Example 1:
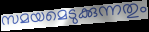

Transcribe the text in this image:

സമയമെടുക്കുന്നതും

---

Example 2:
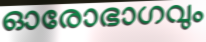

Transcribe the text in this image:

ഓരോഭാഗവും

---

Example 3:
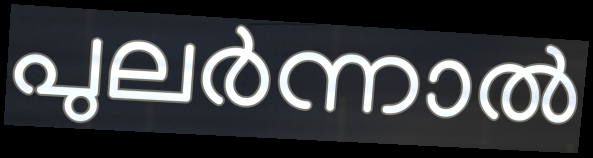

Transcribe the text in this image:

പുലർന്നാൽ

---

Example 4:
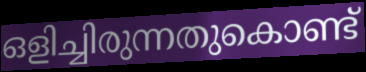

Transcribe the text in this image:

ഒളിച്ചിരുന്നതുകൊണ്ട്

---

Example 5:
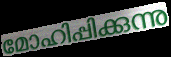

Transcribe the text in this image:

മോഹിപ്പിക്കുന്നു